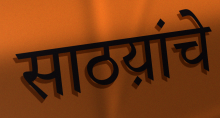
साठय़ांचे